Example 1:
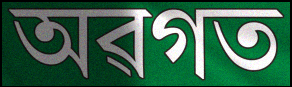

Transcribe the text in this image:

অৱগত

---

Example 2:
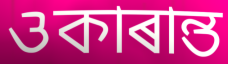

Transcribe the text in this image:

ওকাৰান্ত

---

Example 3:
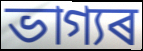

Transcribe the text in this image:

ভাগ্যৰ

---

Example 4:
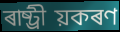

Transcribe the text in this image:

ৰাষ্ট্ৰীয়কৰণ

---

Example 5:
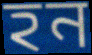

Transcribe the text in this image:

হন